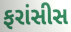
ફરાંસીસ